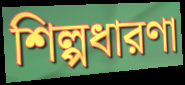
শিল্পধারণা